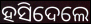
ହସିଦେଲେ